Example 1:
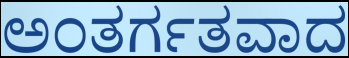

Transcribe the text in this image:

ಅಂತರ್ಗತವಾದ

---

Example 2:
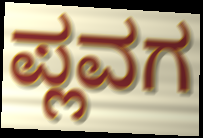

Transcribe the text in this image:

ಪ್ಲವಗ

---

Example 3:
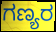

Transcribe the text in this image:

ಗಣ್ಯರ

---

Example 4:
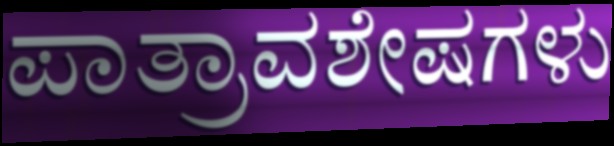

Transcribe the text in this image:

ಪಾತ್ರಾವಶೇಷಗಳು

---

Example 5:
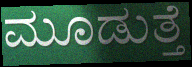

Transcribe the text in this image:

ಮೂಡುತ್ತೆ